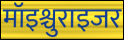
मॉइश्चुराइजर